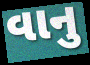
વાનુ